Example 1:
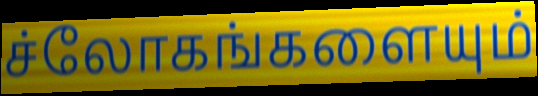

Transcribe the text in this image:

ச்லோகங்களையும்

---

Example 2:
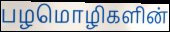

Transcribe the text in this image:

பழமொழிகளின்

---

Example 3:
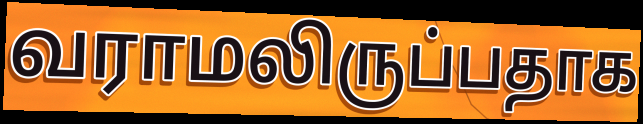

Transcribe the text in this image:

வராமலிருப்பதாக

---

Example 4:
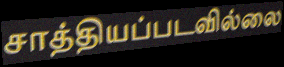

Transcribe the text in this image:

சாத்தியப்படவில்லை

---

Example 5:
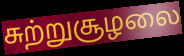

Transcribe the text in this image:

சுற்றுசூழலை